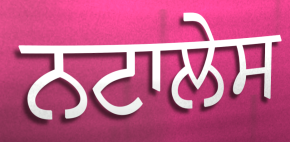
ਨਟਾਲੇਸ